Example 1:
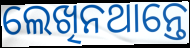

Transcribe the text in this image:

ଲେଖିନଥାନ୍ତେ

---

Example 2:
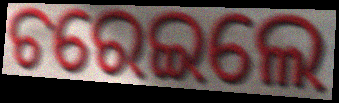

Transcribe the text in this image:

ଚରେଇଲେ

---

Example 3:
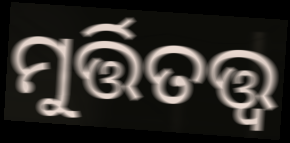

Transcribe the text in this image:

ମୁର୍ତ୍ତିତତ୍ତ୍ବ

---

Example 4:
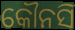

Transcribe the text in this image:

କୌନସି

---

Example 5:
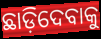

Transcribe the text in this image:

ଛାଡ଼ିଦେବାକୁ